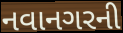
નવાનગરની